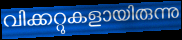
വിക്കറ്റുകളായിരുന്നു